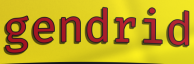
gendrid